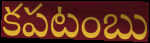
కపటంబు